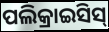
ପଲିକ୍ରାଇସିସ୍